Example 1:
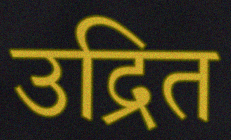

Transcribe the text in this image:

उद्रित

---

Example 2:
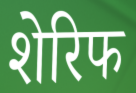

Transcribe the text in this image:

शेरिफ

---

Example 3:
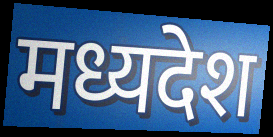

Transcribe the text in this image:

मध्यदेश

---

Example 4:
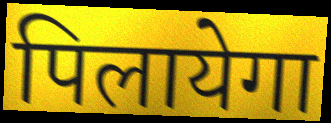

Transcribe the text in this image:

पिलायेगा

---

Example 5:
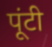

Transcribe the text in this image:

पूंटी